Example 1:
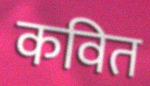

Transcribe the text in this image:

कवित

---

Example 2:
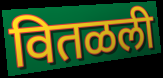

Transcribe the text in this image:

वितळली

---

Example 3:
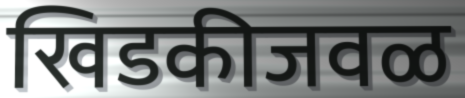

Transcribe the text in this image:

खिडकीजवळ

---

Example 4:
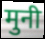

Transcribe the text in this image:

मुनी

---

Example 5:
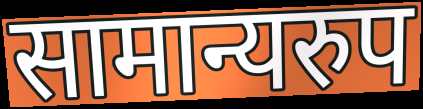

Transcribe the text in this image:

सामान्यरुप